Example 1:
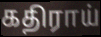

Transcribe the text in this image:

கதிராய்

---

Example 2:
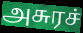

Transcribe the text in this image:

அசுரச்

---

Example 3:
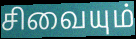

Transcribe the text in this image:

சிவையும்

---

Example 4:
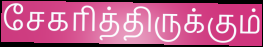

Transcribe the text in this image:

சேகரித்திருக்கும்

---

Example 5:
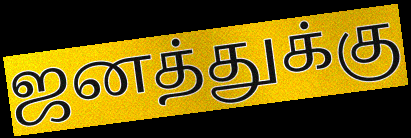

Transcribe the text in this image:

ஜனத்துக்கு